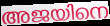
അജയിനെ